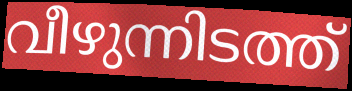
വീഴുന്നിടത്ത്